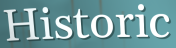
Historic